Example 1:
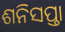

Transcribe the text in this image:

ଶନିସପ୍ତା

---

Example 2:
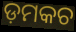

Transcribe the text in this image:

ଡ଼ମକଚ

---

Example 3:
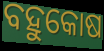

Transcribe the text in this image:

ବହୁକୋଷ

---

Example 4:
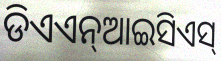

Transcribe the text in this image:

ଡିଏଏନ୍ଆଇସିଏସ୍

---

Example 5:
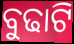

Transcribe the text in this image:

ବୁଢାଟି